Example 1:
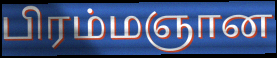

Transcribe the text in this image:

பிரம்மஞான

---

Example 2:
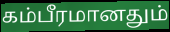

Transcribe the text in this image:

கம்பீரமானதும்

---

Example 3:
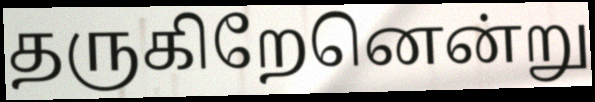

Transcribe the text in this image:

தருகிறேனென்று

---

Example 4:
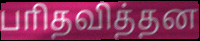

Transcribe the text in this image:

பரிதவித்தன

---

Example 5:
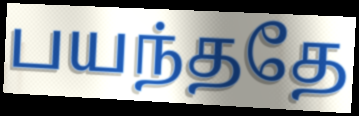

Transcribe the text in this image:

பயந்ததே